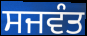
ਸਜਵੰਤ